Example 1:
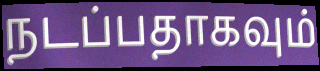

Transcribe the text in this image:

நடப்பதாகவும்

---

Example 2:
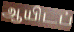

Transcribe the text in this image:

ஆயிடப்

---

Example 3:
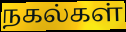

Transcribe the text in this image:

நகல்கள்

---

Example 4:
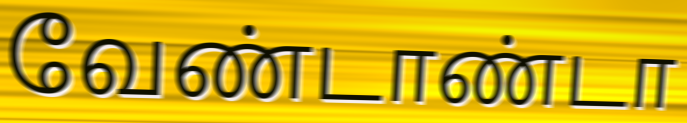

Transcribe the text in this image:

வேண்டாண்டா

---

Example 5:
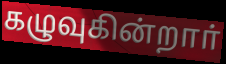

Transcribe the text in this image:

கழுவுகின்றார்